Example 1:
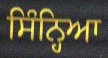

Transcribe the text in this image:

ਸਿੰਨ੍ਹਿਆ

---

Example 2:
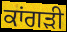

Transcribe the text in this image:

ਕਾਂਗੜੀ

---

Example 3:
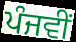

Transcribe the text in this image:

ਪੰਜਵੀਂ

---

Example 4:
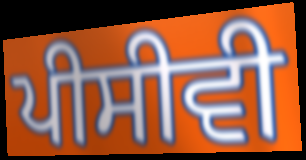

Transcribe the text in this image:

ਪੀਸੀਵੀ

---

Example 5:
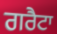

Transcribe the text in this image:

ਗਰੈਟਾ